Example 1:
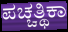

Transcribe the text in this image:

ಪಚ್ಚತ್ಥಿಕಾ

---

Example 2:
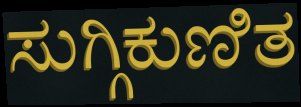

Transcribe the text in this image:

ಸುಗ್ಗಿಕುಣಿತ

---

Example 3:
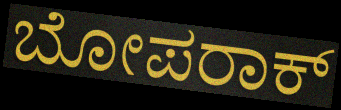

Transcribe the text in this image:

ಬೋಪರಾಕ್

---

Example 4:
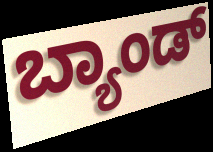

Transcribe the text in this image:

ಬ್ಯಾಂಡ್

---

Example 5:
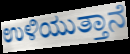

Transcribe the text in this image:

ಉಳಿಯುತ್ತಾನೆ